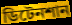
ডিটেনশান